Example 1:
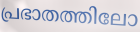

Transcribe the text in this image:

പ്രഭാതത്തിലോ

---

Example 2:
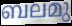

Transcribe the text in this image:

ബലമു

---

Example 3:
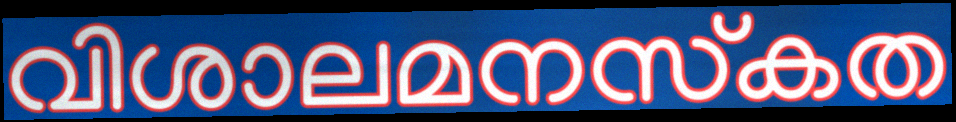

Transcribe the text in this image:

വിശാലമനസ്‌കത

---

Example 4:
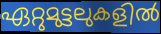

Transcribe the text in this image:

ഏറ്റുമുട്ടലുകളിൽ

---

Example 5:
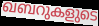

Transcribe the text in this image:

ഖബറുകളുടെ